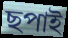
ছপাই